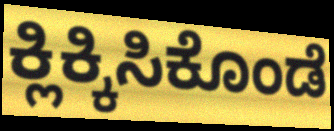
ಕ್ಲಿಕ್ಕಿಸಿಕೊಂಡೆ